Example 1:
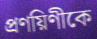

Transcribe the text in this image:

প্রণয়িণীকে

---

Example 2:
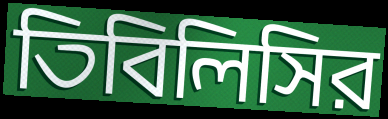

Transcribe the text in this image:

তিবিলিসির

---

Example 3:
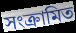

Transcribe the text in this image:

সংক্রামিত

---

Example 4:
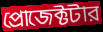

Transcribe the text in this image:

প্রোজেক্টটার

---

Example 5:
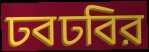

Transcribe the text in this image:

ঢবঢবির